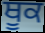
ਥੂਕ